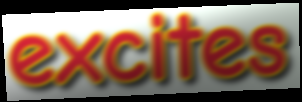
excites